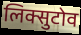
लिक्सुटोव